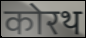
कोरथ